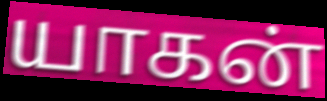
யாகன்